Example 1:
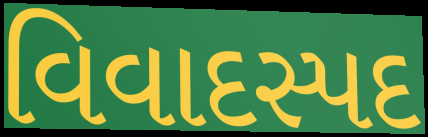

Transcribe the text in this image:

વિવાદસ્પદ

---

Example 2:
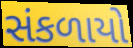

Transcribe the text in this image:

સંકળાયો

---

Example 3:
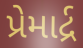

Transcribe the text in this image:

પ્રેમાર્દ્ર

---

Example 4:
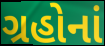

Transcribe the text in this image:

ગ્રહોનાં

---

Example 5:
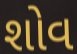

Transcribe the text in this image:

શોવ